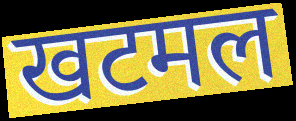
खटमल